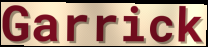
Garrick